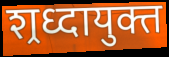
श्रध्दायुक्त